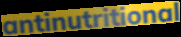
antinutritional